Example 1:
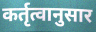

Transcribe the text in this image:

कर्तृत्वानुसार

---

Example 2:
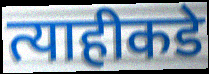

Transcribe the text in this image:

त्याहीकडे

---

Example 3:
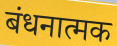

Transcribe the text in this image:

बंधनात्मक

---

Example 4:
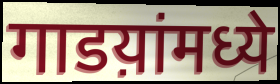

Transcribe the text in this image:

गाडय़ांमध्ये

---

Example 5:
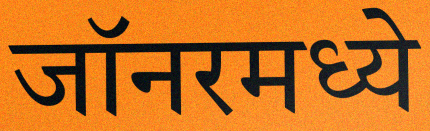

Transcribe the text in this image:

जॉनरमध्ये